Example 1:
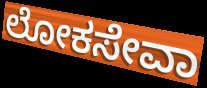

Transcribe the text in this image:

ಲೋಕಸೇವಾ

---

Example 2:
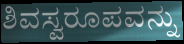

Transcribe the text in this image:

ಶಿವಸ್ವರೂಪವನ್ನು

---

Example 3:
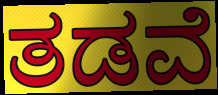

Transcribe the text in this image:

ತಡವೆ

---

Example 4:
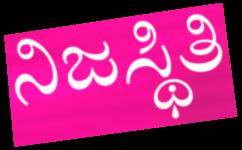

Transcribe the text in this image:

ನಿಜಸ್ಥಿತಿ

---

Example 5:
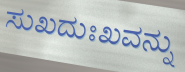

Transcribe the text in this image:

ಸುಖದುಃಖವನ್ನು